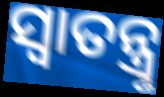
ସ୍ବାତନ୍ତ୍ରୢ